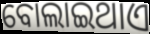
ବୋଲାଇଥାଏ